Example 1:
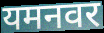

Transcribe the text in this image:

यमनवर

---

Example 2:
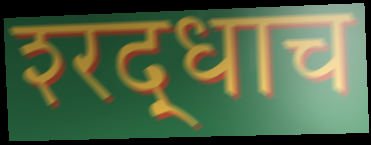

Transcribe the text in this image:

श्रद्धाच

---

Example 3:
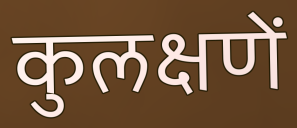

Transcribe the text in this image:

कुलक्षणें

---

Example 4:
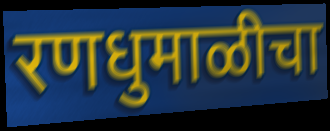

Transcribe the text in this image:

रणधुमाळीचा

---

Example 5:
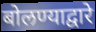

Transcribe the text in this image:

बोलण्याद्वारे